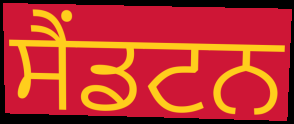
ਸੈਂਡਟਨ